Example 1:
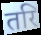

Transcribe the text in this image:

तरि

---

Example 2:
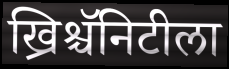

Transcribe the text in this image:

ख्रिश्चॅनिटीला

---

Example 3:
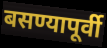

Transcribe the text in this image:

बसण्यापूर्वी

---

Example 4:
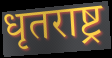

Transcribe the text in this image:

धृतराष्ट्र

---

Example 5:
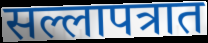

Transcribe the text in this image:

सल्लापत्रात